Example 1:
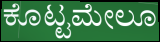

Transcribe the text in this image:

ಕೊಟ್ಟಮೇಲೂ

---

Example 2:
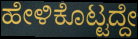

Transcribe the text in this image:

ಹೇಳಿಕೊಟ್ಟದ್ದೇ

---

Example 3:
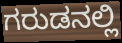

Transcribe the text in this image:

ಗರುಡನಲ್ಲಿ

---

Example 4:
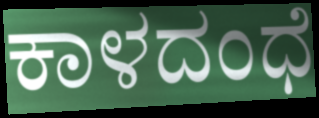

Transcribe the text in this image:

ಕಾಳದಂಧೆ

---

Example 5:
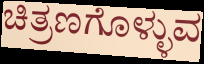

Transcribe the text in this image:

ಚಿತ್ರಣಗೊಳ್ಳುವ